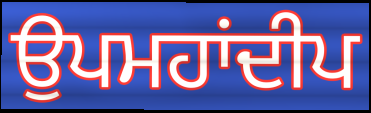
ਉਪਮਹਾਂਦੀਪ